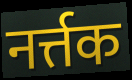
नर्त्तक